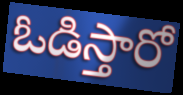
ఓడిస్తారో